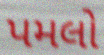
પમલો